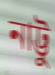
নাট্টু